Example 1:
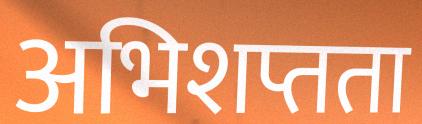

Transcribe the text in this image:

अभिशप्तता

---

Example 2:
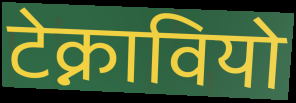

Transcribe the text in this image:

टेक्नावियो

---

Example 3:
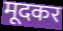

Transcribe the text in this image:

मूदकर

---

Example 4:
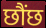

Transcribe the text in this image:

छौंछ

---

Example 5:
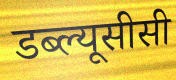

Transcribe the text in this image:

डब्ल्यूसीसी